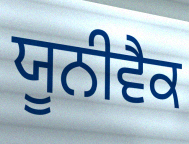
ਯੂਨੀਵੈਕ